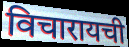
विचारायची